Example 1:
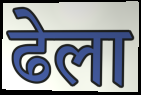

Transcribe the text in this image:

ढेला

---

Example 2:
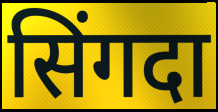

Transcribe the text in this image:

सिंगदा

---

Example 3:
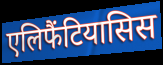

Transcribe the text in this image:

एलिफैंटियासिस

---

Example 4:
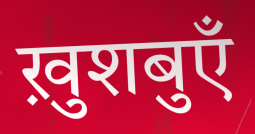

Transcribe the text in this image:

ख़ुशबुएँ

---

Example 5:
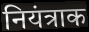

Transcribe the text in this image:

नियंत्राक